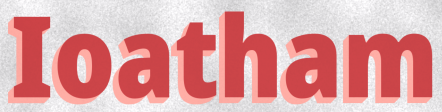
Ioatham